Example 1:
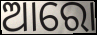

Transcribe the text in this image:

ଆରୋ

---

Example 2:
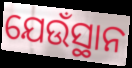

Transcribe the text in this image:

ଯେଉଁସ୍ଥାନ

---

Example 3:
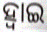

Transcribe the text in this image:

ହ୍ଵାଇ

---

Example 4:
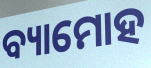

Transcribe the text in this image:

ବ୍ୟାମୋହ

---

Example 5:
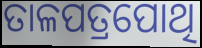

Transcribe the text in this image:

ତାଳପତ୍ରପୋଥି